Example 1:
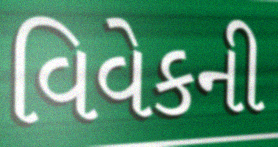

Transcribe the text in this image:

વિવેકની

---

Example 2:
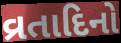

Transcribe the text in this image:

વ્રતાદિનો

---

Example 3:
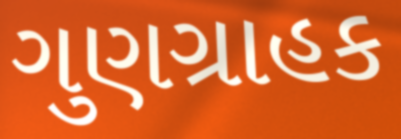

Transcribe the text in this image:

ગુણગ્રાહક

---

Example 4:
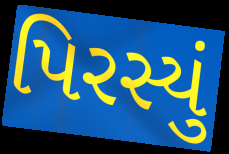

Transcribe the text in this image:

પિરસ્યું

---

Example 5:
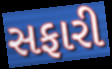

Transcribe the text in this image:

સફારી